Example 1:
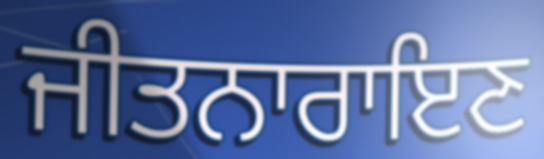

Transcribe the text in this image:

ਜੀਤਨਾਰਾਇਣ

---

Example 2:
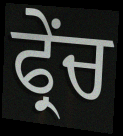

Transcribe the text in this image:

ਫ੍ਰੇੰਚ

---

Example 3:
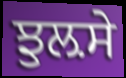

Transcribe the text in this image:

ਝੁਲ਼ਸੇ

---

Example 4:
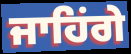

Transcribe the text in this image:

ਜਾਹਿਂਗੇ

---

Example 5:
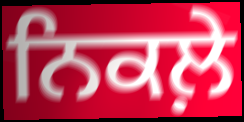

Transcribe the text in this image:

ਨਿਕਲ਼ੇ